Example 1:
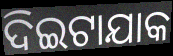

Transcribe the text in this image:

ଦିଇଟାଯାକ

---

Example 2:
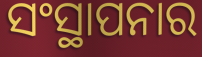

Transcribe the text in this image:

ସଂସ୍ଥାପନାର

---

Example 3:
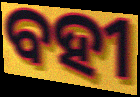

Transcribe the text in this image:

ବହୀ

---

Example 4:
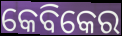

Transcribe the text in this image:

କେବିକେର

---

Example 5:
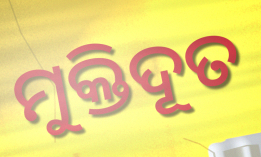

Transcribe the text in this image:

ମୁକ୍ତିଦୂତ